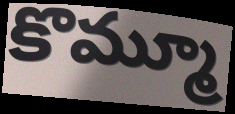
కొమ్మూ